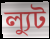
ল্যুট